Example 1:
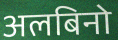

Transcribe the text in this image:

अलबिनो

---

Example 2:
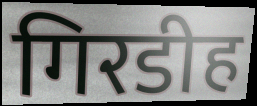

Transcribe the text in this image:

गिरडीह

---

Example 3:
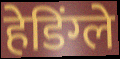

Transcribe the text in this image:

हेडिंग्‍ले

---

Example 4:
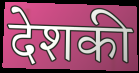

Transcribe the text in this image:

देशकी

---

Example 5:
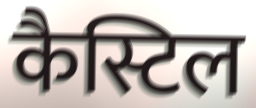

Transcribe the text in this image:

कैस्टिल